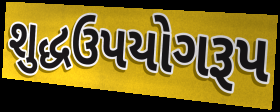
શુદ્ધઉપયોગરૂપ